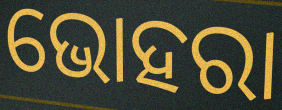
ଭୋହରା